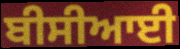
ਬੀਸੀਆਈ